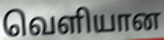
வெளியான